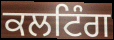
ਕਲਟਿੰਗ